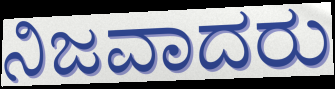
ನಿಜವಾದರು